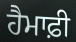
ਹੈਮਾਫ਼ੀ